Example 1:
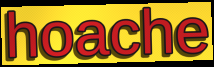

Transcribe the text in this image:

hoache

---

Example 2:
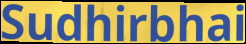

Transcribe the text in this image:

Sudhirbhai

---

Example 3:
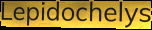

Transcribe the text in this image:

Lepidochelys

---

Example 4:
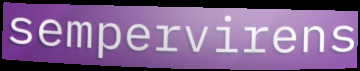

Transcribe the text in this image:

sempervirens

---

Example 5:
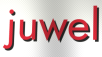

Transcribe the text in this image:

juwel